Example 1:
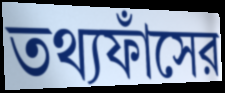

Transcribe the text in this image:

তথ্যফাঁসের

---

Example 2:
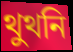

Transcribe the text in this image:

থুথনি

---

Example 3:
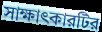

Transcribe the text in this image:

সাক্ষাৎকারটির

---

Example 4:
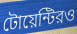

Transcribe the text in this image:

টোয়েন্টিরও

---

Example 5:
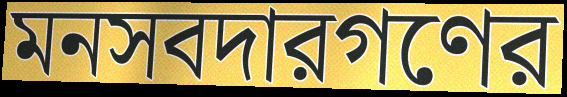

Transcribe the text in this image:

মনসবদারগণের